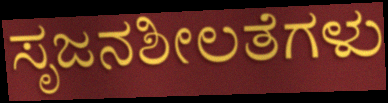
ಸೃಜನಶೀಲತೆಗಳು